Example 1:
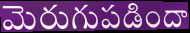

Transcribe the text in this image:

మెరుగుపడిందా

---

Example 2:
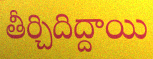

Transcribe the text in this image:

తీర్చిదిద్దాయి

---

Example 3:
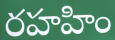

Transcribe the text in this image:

రహహిం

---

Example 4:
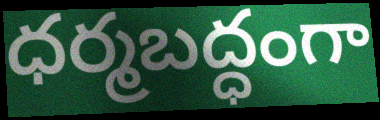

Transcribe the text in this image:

ధర్మబద్ధంగా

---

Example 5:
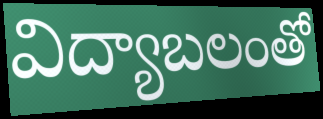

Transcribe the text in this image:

విద్యాబలంతో